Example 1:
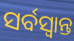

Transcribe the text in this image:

ସର୍ବସ୍ୱାନ୍ତ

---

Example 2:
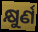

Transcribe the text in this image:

କ୍ଷୁର୍ଣ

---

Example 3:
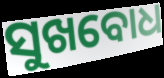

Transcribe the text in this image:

ସୁଖବୋଧ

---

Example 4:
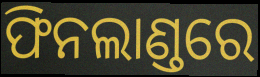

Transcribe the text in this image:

ଫିନଲାଣ୍ଡରେ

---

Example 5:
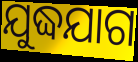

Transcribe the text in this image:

ଯୁଦ୍ଧଯାଗ